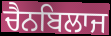
ਚੈਨਬਿਲਾਜ